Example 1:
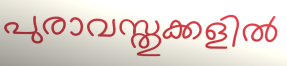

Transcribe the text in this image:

പുരാവസ്തുക്കളിൽ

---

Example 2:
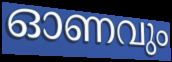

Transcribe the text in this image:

ഓണവും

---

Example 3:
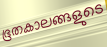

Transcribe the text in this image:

ഭൂതകാലങ്ങളുടെ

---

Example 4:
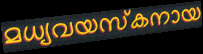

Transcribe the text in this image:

മധ്യവയസ്കനായ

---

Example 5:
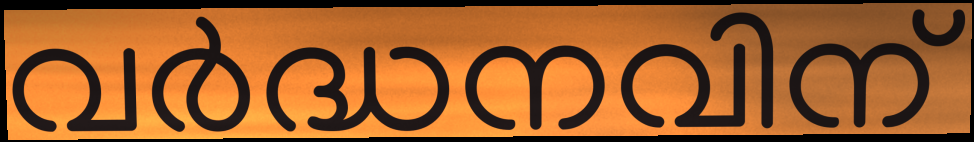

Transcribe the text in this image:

വർദ്ധനവിന്